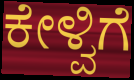
ಕೇಳ್ವಿಗೆ